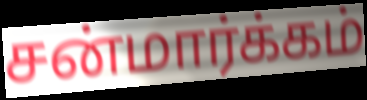
சன்மார்க்கம்